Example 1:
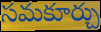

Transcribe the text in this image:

సమకూర్చు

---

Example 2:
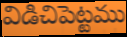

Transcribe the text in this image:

విడిచిపెట్టము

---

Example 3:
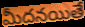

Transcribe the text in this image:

మీదనయితే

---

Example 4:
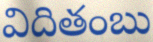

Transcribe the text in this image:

విదితంబు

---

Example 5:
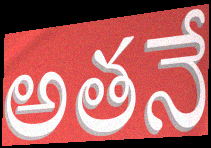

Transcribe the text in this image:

అతనే